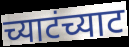
च्याटंच्याट